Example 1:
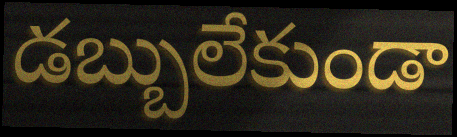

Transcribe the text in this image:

డబ్బులేకుండా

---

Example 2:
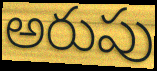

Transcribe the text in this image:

అరుపు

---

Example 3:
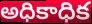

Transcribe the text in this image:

అధికాధిక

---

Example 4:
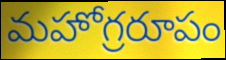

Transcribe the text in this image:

మహోగ్రరూపం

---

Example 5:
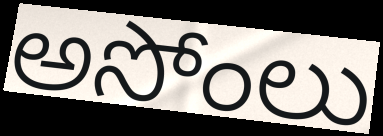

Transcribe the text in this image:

అసోంలు